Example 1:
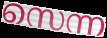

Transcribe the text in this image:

സെന്ന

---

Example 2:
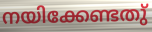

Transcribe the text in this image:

നയിക്കേണ്ടതു്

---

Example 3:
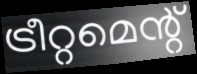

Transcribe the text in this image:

ട്രീറ്റമെന്റ്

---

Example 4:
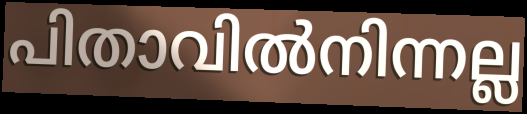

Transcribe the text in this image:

പിതാവിൽനിന്നല്ല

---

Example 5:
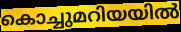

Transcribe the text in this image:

കൊച്ചുമറിയയിൽ